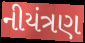
નીયંત્રણ